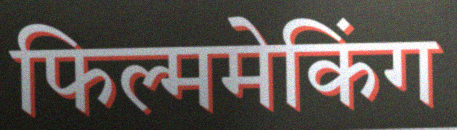
फिल्‍ममेकिंग